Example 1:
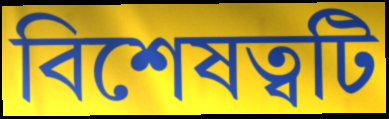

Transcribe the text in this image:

বিশেষত্বটি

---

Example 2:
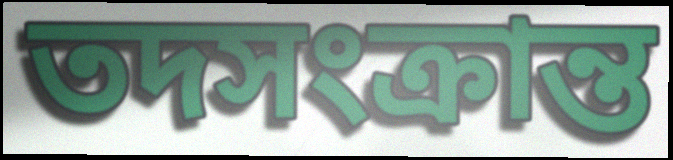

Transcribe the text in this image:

তদসংক্রান্ত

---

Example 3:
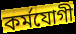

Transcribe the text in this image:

কর্মযোগী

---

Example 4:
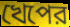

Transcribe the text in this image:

খেপের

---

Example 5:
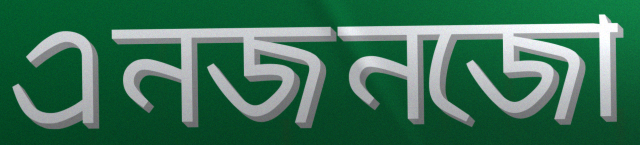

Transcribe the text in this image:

এনজনজো